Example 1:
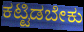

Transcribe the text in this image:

ಕಟ್ಟಿಡಬೇಕು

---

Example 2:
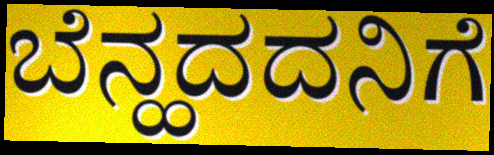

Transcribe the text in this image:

ಬೆನ್ಹದದನಿಗೆ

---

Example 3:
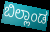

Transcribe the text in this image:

ಬಿಲ್ಲಾಂಡ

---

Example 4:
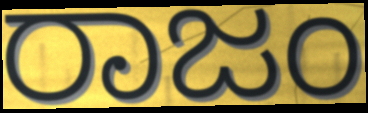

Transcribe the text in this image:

ರಾಜಂ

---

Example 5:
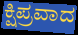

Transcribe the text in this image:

ಕ್ಷಿಪ್ರವಾದ